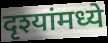
दृश्यांमध्ये